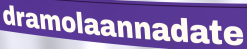
dramolaannadate